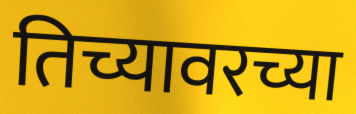
तिच्यावरच्या